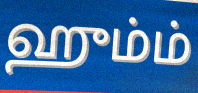
ஹும்ம்